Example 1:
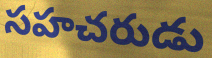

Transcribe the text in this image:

సహచరుడు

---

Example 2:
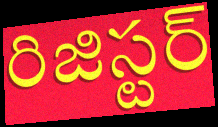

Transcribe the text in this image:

రిజిస్టర్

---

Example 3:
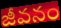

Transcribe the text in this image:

జీవనం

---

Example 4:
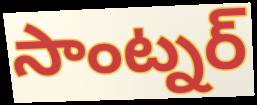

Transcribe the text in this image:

సాంట్నర్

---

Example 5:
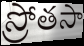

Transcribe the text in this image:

స్రోతసా